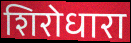
शिरोधारा